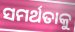
ସମର୍ଥତାକୁ